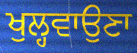
ਖੁਲ੍ਹਵਾਉਣਾ